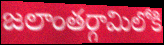
జలాంతర్గామిలోకి